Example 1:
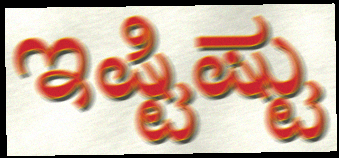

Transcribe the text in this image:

ಇಷ್ಟಿಷ್ಟು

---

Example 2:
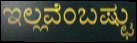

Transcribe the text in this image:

ಇಲ್ಲವೆಂಬಷ್ಟು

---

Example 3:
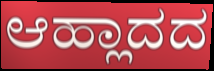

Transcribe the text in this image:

ಆಹ್ಲಾದದ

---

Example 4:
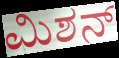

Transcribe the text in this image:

ಮಿಶನ್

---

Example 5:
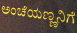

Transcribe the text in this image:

ಅಂಚೆಯಣ್ಣನಿಗೆ